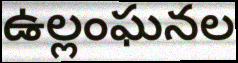
ఉల్లంఘనల